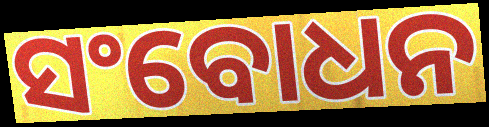
ସଂବୋଧନ